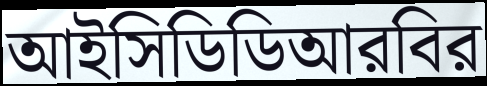
আইসিডিডিআরবির